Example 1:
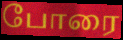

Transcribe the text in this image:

போரை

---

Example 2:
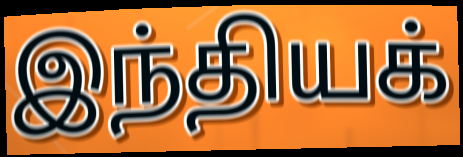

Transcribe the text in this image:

இந்தியக்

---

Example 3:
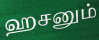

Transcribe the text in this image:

ஹசனும்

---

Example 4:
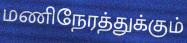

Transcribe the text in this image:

மணிநேரத்துக்கும்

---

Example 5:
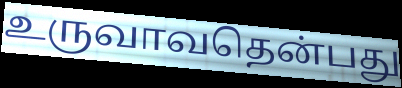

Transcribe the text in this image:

உருவாவதென்பது